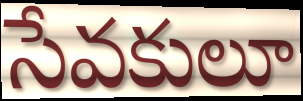
సేవకులూ